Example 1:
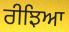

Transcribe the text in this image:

ਰੀਝਿਆ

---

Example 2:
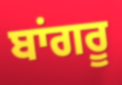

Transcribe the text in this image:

ਬਾਂਗਰੂ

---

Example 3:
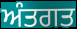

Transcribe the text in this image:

ਅੰਤਗਤ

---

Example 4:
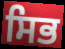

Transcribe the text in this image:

ਸਿਭ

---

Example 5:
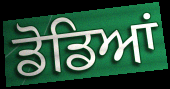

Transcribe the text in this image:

ਡੋਡਿਆਂ